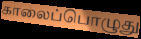
காலைப்பொழுது